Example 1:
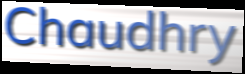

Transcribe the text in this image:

Chaudhry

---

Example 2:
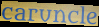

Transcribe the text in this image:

caruncle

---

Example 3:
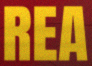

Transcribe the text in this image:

REA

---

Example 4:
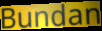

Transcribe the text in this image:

Bundan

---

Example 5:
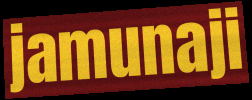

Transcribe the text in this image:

jamunaji